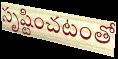
సృష్టించటంతో